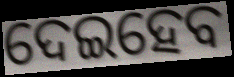
ଦେଇହେବ